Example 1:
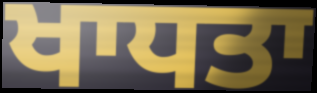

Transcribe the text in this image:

ਖਾਧਤਾ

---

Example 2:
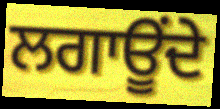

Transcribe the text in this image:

ਲਗਾਊਂਦੇ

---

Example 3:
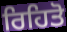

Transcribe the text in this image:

ਰਿਹਿਤੋ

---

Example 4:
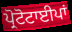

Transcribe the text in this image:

ਪ੍ਰੋਟੋਟਾਈਪਾਂ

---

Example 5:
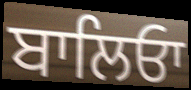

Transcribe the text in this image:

ਬਾਲਿਓਾ